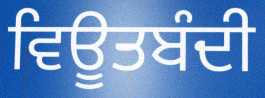
ਵਿਊਤਬੰਦੀ